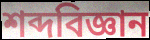
শব্দবিজ্ঞান